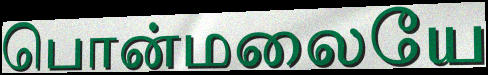
பொன்மலையே